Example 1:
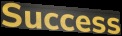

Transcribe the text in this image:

Success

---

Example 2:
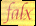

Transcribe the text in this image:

falx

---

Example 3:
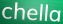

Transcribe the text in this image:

chella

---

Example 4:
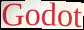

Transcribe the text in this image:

Godot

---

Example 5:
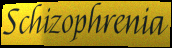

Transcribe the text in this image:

Schizophrenia